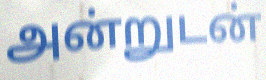
அன்றுடன்